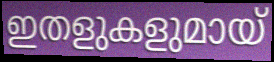
ഇതളുകളുമായ്